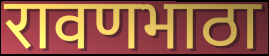
रावणभाठा